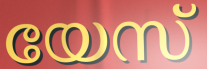
യേസ്